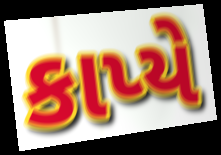
કાપ્યે